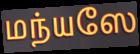
மந்யஸே